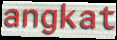
angkat